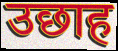
उछाह